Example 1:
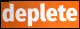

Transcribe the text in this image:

deplete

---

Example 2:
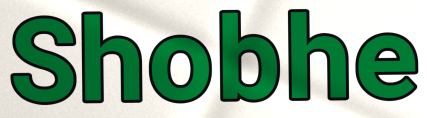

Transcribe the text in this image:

Shobhe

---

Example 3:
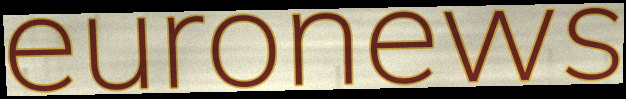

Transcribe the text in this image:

euronews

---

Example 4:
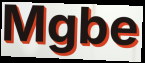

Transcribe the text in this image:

Mgbe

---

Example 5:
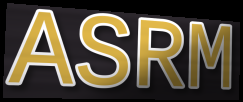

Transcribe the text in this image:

ASRM